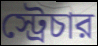
স্ট্রেচার